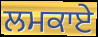
ਲਮਕਾਏ